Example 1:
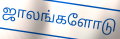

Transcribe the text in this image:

ஜாலங்களோடு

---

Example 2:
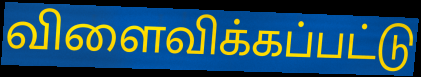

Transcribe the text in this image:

விளைவிக்கப்பட்டு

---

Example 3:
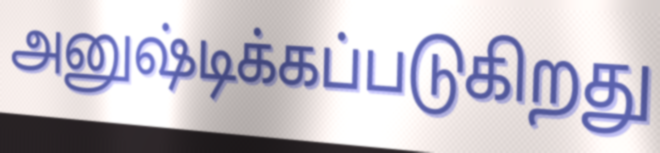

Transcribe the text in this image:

அனுஷ்டிக்கப்படுகிறது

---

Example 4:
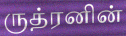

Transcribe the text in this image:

ருத்ரனின்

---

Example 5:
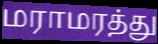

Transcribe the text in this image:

மராமரத்து